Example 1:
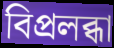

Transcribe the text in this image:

বিপ্রলব্ধা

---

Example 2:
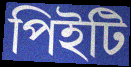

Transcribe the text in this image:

পিইটি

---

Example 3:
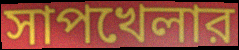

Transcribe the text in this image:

সাপখেলার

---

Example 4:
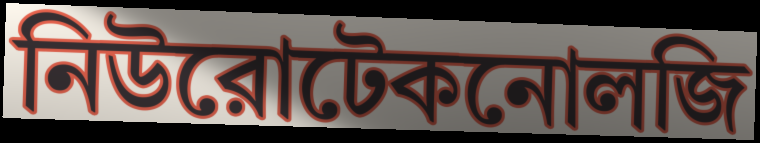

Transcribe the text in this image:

নিউরোটেকনোলজি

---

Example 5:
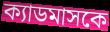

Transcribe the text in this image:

ক্যাডমাসকে